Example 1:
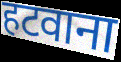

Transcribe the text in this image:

हटवाना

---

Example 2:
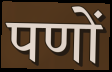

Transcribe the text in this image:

पणों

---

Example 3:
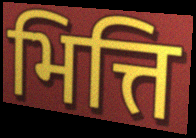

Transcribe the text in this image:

भित्ति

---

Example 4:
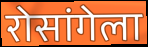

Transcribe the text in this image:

रोसांगेला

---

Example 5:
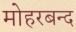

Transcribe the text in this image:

मोहरबन्द